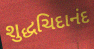
શુદ્ધચિદાનંદ